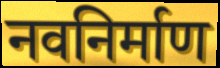
नवनिर्माण